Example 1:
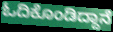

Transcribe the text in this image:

ಓದಿಕೊಂಡಿದ್ದಾನೆ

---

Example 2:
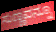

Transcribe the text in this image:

ಸುಣ್ಣವನ್ನೂ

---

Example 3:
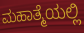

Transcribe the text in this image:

ಮಹಾತ್ಮೆಯಲ್ಲಿ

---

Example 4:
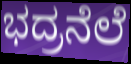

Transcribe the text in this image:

ಭದ್ರನೆಲೆ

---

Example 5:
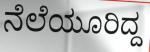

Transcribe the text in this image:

ನೆಲೆಯೂರಿದ್ದ